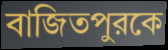
বাজিতপুরকে